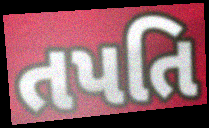
તપતિ